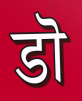
डॊ